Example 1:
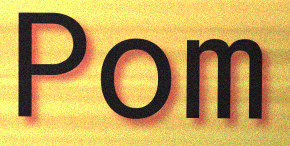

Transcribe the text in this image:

Pom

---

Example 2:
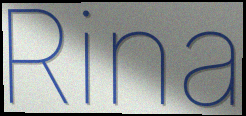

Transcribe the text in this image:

Rina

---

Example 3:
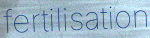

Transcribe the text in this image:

fertilisation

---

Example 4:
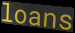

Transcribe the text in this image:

loans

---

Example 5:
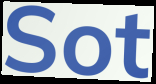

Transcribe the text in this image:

Sot